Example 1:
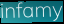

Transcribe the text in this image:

infamy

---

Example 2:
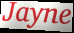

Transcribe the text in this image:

Jayne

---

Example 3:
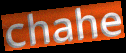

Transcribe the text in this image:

chahe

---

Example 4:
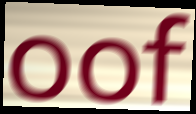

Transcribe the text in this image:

oof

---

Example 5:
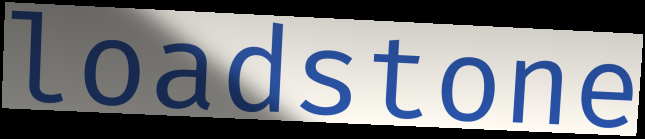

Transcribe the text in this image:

loadstone